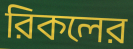
রিকলের